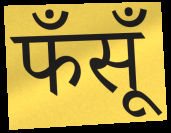
फँसूँ